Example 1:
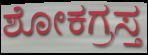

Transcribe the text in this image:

ಶೋಕಗ್ರಸ್ತ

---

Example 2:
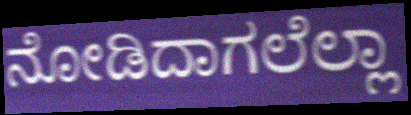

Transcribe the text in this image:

ನೋಡಿದಾಗಲೆಲ್ಲಾ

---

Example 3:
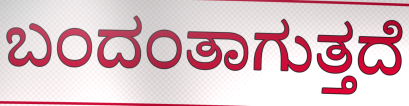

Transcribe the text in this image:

ಬಂದಂತಾಗುತ್ತದೆ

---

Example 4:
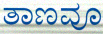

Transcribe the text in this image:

ತಾಣವೂ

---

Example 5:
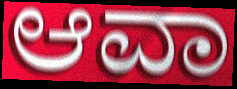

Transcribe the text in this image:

ಆವಾ